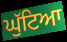
ਘੁੱਟਿਆ